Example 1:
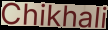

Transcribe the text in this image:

Chikhali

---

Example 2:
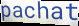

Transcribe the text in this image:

pachat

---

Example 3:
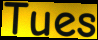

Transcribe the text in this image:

Tues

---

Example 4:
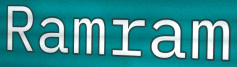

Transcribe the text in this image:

Ramram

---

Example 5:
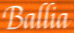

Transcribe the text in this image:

Ballia